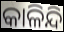
କାଳିନ୍ଦି